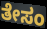
ತೇಸಂ